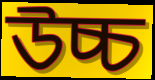
উচ্চ